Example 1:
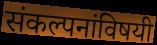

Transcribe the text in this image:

संकल्पनांविषयी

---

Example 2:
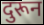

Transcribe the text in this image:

दुरून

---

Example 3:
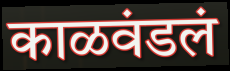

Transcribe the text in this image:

काळवंडलं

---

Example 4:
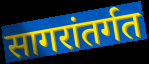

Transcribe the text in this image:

सागरांतर्गत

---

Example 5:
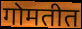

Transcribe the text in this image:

गोमतीत